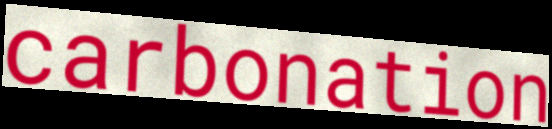
carbonation